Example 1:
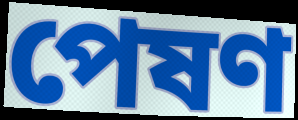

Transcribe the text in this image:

পেষণ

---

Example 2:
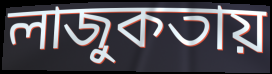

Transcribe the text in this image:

লাজুকতায়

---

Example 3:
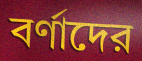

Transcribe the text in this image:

বর্ণাদের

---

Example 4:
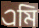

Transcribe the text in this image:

এমি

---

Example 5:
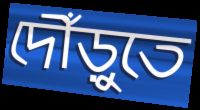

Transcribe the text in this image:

দৌঁড়ুতে